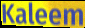
Kaleem